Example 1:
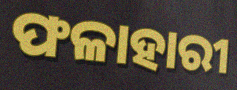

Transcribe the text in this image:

ଫଳାହାରୀ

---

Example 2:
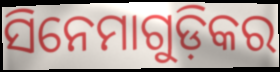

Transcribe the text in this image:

ସିନେମାଗୁଡ଼ିକର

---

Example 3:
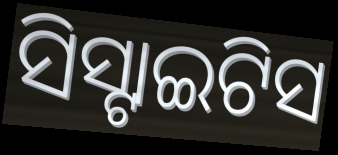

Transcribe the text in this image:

ସିସ୍ଟାଇଟିସ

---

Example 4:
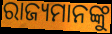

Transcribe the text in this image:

ରାଜ୍ଯମାନଙ୍କୁ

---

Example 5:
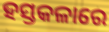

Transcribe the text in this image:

ହସ୍ତକଳାରେ